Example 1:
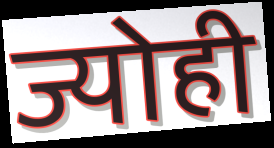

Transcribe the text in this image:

ज्योही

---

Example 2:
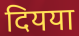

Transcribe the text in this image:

दियया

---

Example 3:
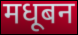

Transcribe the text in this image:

मधूबन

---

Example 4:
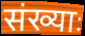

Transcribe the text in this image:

संख्याः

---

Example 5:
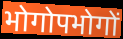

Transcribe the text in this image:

भोगोपभोगों